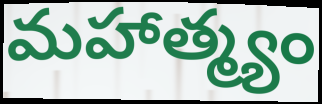
మహాత్మ్యం